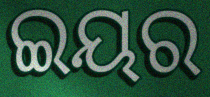
ଇୟର